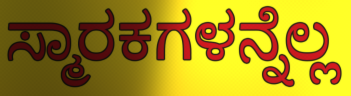
ಸ್ಮಾರಕಗಳನ್ನೆಲ್ಲ